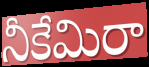
నీకేమిరా